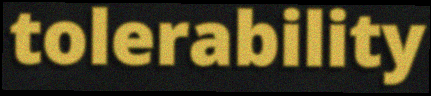
tolerability